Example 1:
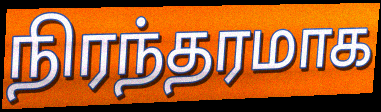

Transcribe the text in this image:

நிரந்தரமாக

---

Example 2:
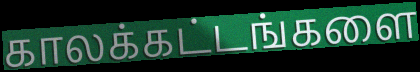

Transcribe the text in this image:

காலக்கட்டங்களை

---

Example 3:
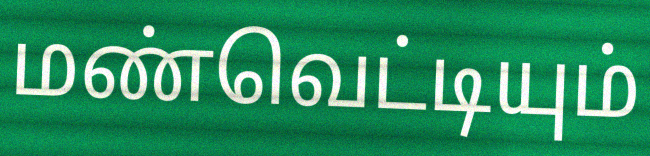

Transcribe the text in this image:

மண்வெட்டியும்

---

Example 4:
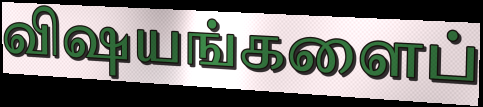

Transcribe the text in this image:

விஷயங்களைப்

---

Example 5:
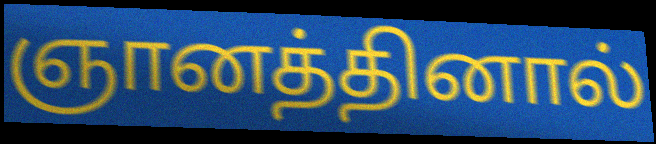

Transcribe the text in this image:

ஞானத்தினால்